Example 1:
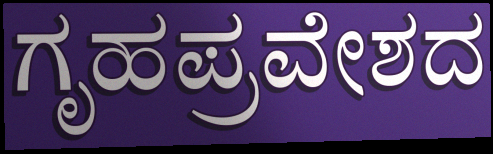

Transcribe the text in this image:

ಗೃಹಪ್ರವೇಶದ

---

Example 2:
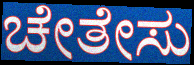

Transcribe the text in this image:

ಚೇತೇಸು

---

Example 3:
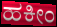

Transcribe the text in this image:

ಹಕೀಂ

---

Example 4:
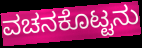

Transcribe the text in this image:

ವಚನಕೊಟ್ಟನು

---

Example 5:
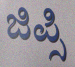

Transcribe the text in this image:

ಜಿಪ್ಸಿ